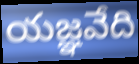
యజ్ఞవేది